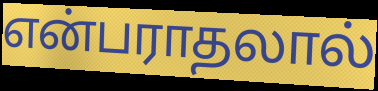
என்பராதலால்